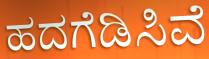
ಹದಗೆಡಿಸಿವೆ